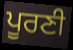
ਪੂਰਣੀ